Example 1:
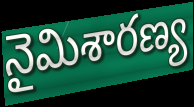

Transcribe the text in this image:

నైమిశారణ్య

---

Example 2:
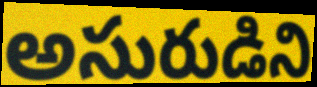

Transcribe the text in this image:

అసురుడిని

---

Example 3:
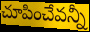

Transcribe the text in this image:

చూపించేవన్నీ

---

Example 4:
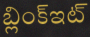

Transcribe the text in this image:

బ్లింక్ఇట్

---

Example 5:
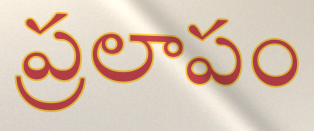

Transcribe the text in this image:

ప్రలాపం